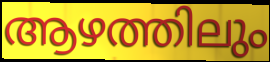
ആഴത്തിലും